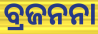
ବ୍ରଜନନା